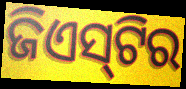
ଜିଏସ୍‌ଟିର